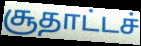
சூதாட்டச்